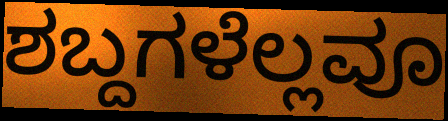
ಶಬ್ದಗಳೆಲ್ಲವೂ